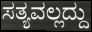
ಸತ್ಯವಲ್ಲದ್ದು